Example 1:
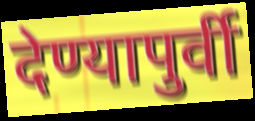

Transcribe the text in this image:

देण्यापुर्वी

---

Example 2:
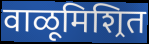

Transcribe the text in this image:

वाळूमिश्रित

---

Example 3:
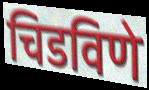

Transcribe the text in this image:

चिडविणे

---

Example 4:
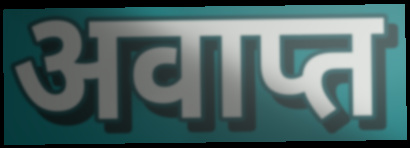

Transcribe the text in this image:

अवाप्त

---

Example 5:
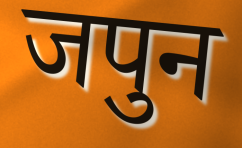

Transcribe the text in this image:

जपुन